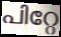
പിറ്റേ